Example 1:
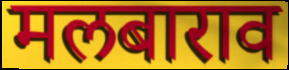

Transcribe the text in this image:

मलबाराव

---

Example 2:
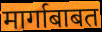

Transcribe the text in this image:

मार्गाबाबत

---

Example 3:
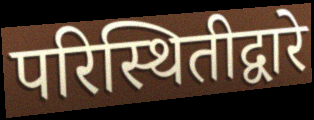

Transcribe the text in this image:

परिस्थितीद्वारे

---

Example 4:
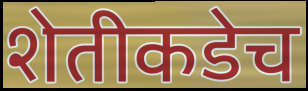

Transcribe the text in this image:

शेतीकडेच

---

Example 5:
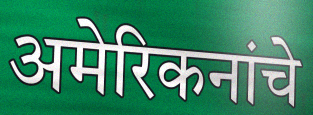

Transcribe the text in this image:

अमेरिकनांचे